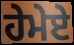
ਹੇਮੇਏ